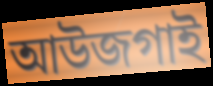
আউজগাই